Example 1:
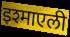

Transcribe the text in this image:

इश्माएली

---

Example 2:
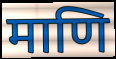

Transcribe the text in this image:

माणि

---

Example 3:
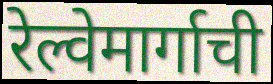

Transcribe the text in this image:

रेल्वेमार्गाची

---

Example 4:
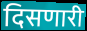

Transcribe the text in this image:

दिसणारी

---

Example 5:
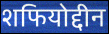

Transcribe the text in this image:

शफियोद्दीन